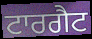
ਟਾਰਗੈਟ